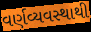
વર્ણવ્યવસ્થાથી